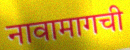
नावामागची